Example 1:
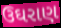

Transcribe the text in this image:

ઉઘરાણ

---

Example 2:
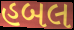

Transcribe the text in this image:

હબલ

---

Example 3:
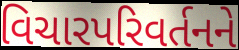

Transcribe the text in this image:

વિચારપરિવર્તનને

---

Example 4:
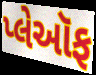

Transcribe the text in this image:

પ્લેઑફ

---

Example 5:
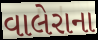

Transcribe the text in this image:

વાલેરાના